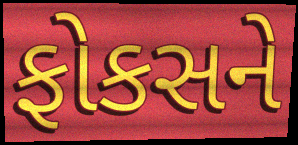
ફોકસને